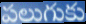
పలుగుకు